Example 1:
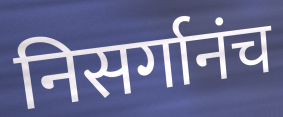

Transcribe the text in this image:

निसर्गानंच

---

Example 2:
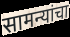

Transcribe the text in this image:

सामन्यांचा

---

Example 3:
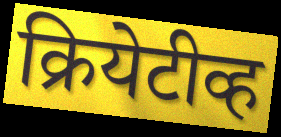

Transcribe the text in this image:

क्रियेटीव्ह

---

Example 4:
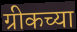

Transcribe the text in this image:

ग्रीकच्या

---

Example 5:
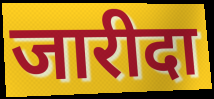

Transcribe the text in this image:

जारीदा